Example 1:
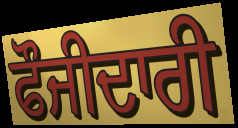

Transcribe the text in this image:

ਫੌਜੀਦਾਰੀ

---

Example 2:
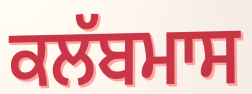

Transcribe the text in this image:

ਕਲੱਬਮਾਸ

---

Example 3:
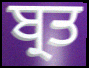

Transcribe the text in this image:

ਬ੍ਰਤ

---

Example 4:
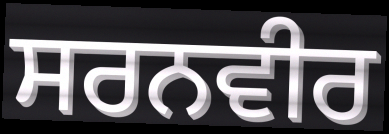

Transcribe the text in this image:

ਸਰਨਵੀਰ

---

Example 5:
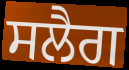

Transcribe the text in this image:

ਸਲੈਗ